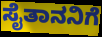
ಸೈತಾನನಿಗೆ